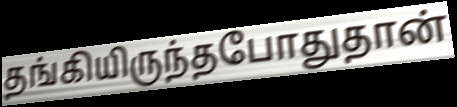
தங்கியிருந்தபோதுதான்